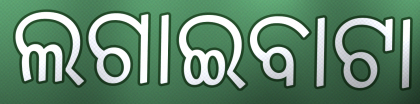
ଲଗାଇବାଟା